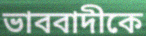
ভাববাদীকে